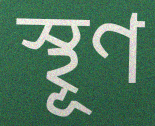
স্থূণ